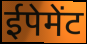
ईपेमेंट